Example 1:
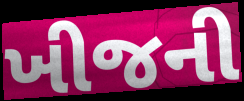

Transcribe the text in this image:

ખીજની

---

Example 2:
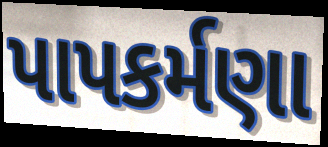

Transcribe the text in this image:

પાપકર્મણા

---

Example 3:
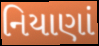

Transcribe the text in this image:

નિયાણાં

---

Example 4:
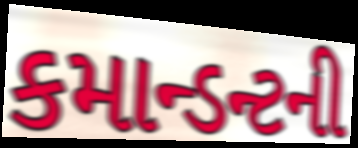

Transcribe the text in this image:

કમાન્ડન્ટની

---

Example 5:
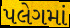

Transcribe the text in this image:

પલેગમાં